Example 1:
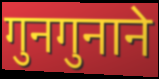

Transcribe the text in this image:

गुनगुनाने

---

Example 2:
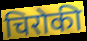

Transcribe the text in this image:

चिरोकी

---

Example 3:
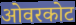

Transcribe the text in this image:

ओवरकोट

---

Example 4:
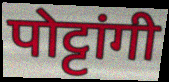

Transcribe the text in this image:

पोट्टांगी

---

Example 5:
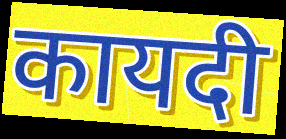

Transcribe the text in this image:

कायदी